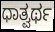
ಧಾತ್ವರ್ಥ